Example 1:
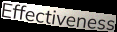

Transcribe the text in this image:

Effectiveness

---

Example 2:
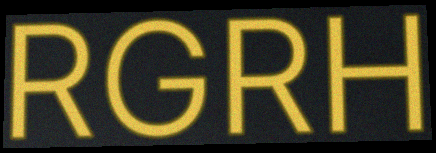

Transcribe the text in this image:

RGRH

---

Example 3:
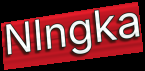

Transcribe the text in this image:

NIngka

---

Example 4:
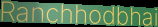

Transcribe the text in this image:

Ranchhodbhai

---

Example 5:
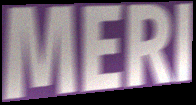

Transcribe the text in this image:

MERI